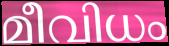
മീവിധം